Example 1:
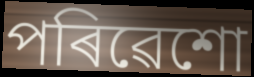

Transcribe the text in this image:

পৰিৱেশো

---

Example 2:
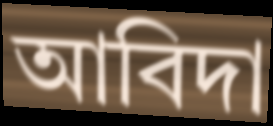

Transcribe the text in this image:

আবিদা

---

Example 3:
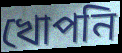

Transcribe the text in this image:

খোপনি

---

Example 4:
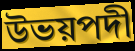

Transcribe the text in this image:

উভয়পদী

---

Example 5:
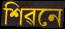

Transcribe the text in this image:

শিৱনে